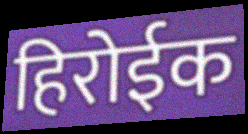
हिरोईक